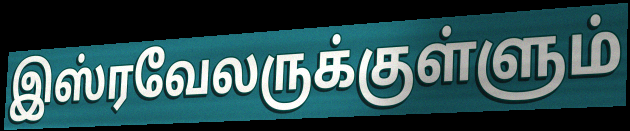
இஸ்ரவேலருக்குள்ளும்